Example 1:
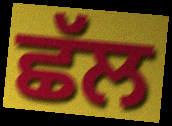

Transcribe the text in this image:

ਛੱਲ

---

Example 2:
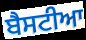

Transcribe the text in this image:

ਬੈਸਟੀਆ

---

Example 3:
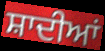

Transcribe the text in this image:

ਸ਼ਾਦੀਆਂ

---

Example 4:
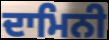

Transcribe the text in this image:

ਦਾਮਿਨੀ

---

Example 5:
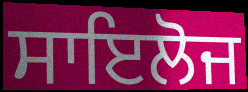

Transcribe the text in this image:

ਸਾਇਲੋਜ